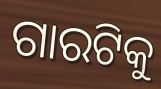
ଗାରଟିକୁ